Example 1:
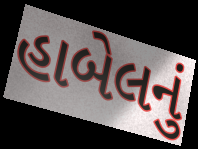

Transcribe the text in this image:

હાબેલનું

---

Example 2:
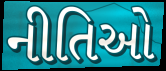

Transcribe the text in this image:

નીતિઓ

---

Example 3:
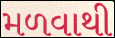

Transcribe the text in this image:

મળવાથી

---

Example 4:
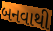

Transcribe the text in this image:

બનવાથી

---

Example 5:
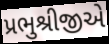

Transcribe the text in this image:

પ્રભુશ્રીજીએ